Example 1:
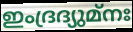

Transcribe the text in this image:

ഇംദ്രദ്യുമ്നഃ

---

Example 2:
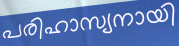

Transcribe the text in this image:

പരിഹാസ്യനായി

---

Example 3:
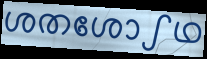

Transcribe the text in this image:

ശതശോഽഥ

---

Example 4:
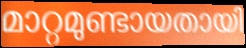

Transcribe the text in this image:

മാറ്റമുണ്ടായതായി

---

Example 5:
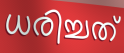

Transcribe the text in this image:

ധരിച്ചത്